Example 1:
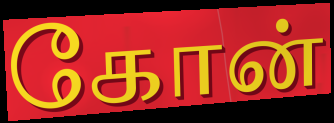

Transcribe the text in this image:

கோன்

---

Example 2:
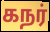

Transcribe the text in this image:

கநர்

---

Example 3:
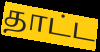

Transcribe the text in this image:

தாட்ட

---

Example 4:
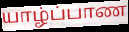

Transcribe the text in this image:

யாழ்ப்பாண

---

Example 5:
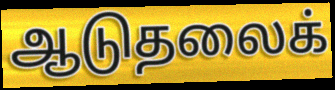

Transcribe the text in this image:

ஆடுதலைக்